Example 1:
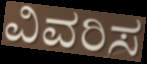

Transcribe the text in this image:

ವಿವರಿಸ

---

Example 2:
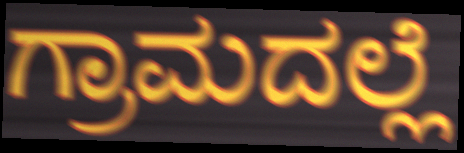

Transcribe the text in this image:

ಗ್ರಾಮದಲ್ಲೆ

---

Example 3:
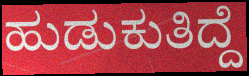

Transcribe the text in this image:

ಹುಡುಕುತಿದ್ದೆ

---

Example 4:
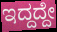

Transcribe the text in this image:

ಇದ್ದದ್ದೇ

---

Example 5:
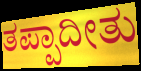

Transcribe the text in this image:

ತಪ್ಪಾದೀತು